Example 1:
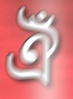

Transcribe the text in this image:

ঐঁ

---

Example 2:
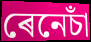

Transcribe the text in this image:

ৰেনেচাঁ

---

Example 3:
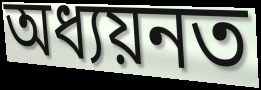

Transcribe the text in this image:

অধ্যয়নত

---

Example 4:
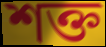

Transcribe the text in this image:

শক্ত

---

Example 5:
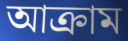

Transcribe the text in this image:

আক্ৰাম